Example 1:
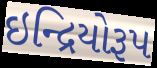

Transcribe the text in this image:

ઇન્દ્રિયોરૂપ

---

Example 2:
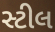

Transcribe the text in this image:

સ્ટીલ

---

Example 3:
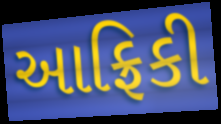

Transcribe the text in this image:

આફ્રિકી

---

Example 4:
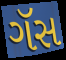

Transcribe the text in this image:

ગૅસ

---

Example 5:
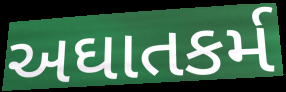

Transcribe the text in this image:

અઘાતકર્મ